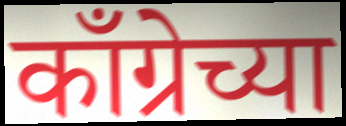
काँग्रेच्या